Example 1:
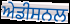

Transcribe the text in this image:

ਅੇਡੀਸਨਲ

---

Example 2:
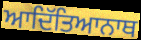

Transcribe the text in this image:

ਆਦਿੱਤਿਆਨਾਥ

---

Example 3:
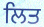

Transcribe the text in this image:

ਲਿਤ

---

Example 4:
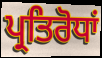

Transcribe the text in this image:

ਪ੍ਰਤਿਰੋਧਾਂ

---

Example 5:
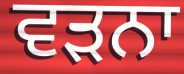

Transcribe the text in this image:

ਵੜਨਾ